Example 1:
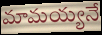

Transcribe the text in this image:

మామయ్యనే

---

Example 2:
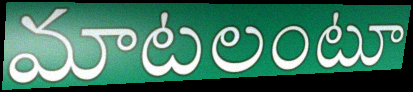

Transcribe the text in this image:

మాటలంటూ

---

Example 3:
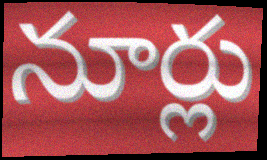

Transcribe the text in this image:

నూర్లు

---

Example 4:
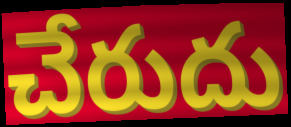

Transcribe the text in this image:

చేరుదు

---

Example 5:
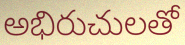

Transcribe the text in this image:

అభిరుచులతో